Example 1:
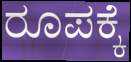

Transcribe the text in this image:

ರೂಪಕ್ಕೆ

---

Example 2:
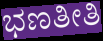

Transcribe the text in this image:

ಭಣತೀತಿ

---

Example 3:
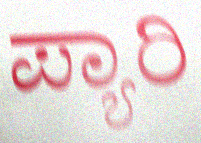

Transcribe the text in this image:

ಪ್ಯಾರಿ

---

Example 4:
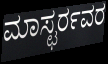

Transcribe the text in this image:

ಮಾಸ್ಟರ್ರವರ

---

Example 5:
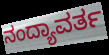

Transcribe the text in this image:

ನಂದ್ಯಾವರ್ತ